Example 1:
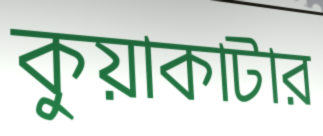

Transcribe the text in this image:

কুয়াকাটার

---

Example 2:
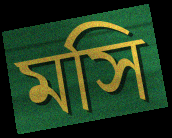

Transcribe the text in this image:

মসি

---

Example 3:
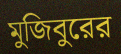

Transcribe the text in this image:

মুজিবুরের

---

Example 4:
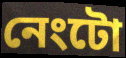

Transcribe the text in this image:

নেংটো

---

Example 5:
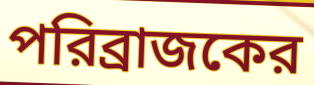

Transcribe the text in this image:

পরিব্রাজকের